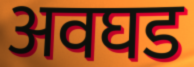
अवघड